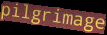
pilgrimage